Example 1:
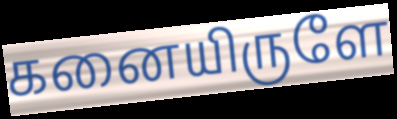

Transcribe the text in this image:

கனையிருளே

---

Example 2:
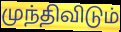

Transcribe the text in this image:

முந்திவிடும்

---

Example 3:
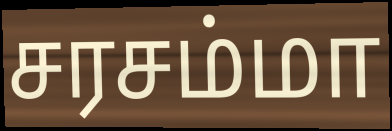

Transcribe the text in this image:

சரசம்மா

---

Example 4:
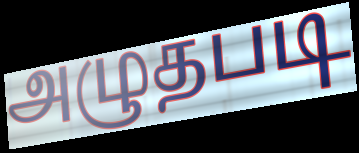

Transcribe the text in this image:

அழுதபடி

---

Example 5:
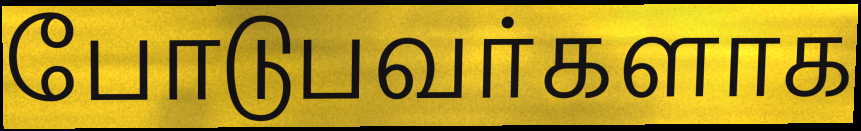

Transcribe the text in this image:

போடுபவர்களாக